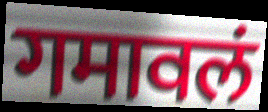
गमावलं